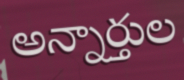
అన్నార్తుల